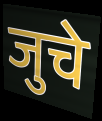
जुचे